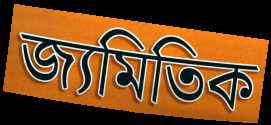
জ্যমিতিক